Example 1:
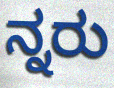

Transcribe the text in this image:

ನ್ನರು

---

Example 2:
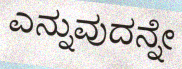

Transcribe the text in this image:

ಎನ್ನುವುದನ್ನೇ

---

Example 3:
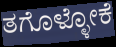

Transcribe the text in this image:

ತಗೊಳ್ಳೋಕೆ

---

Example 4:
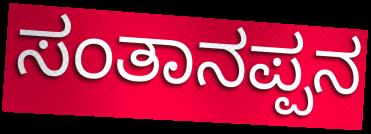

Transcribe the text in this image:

ಸಂತಾನಪ್ಪನ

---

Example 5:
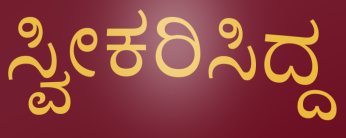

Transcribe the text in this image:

ಸ್ವೀಕರಿಸಿದ್ದ